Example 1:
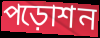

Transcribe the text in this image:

পড়োশন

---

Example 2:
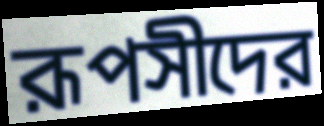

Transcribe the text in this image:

রূপসীদের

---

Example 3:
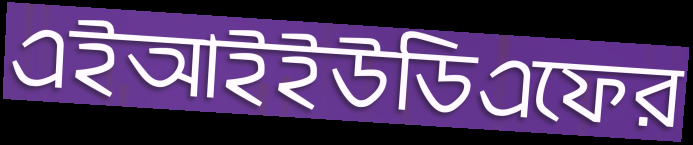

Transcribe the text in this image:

এইআইইউডিএফের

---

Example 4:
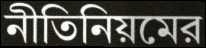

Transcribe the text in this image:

নীতিনিয়মের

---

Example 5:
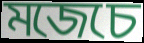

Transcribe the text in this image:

মজেচে